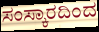
ಸಂಸ್ಕಾರದಿಂದ